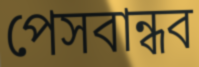
পেসবান্ধব